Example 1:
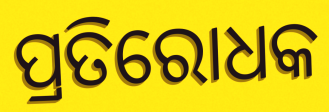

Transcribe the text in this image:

ପ୍ରତିରୋଧକ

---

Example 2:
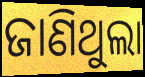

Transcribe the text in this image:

ଜାଣିଥୁଲା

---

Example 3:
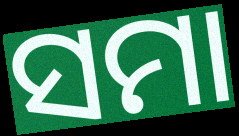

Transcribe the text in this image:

ସମା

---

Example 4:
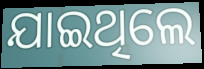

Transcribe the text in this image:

ଯାଇଥିଲେ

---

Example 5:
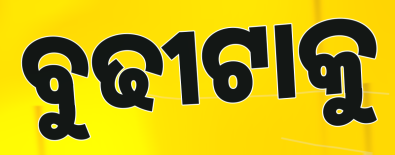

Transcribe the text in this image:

ବୁଢୀଟାକୁ